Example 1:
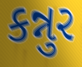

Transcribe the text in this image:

કન્નુર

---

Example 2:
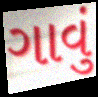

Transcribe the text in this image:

ગાવું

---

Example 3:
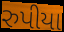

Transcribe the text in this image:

રુપીયા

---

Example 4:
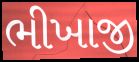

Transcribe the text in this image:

ભીખાજી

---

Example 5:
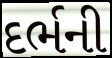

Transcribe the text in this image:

દર્ભની